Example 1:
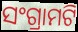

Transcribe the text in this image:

ସଂଗ୍ରାମଟି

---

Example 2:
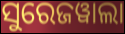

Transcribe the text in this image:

ସୁରେଜୱାଲା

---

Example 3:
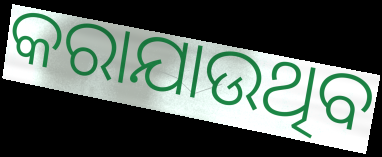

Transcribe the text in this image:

କରାଯାଉଥିବ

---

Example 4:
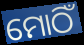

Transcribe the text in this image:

ମୋଠିଁ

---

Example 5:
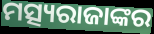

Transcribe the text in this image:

ମତ୍ସ୍ୟରାଜାଙ୍କର